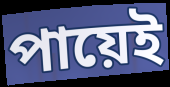
পায়েই